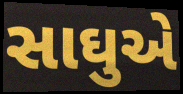
સાઘુએ